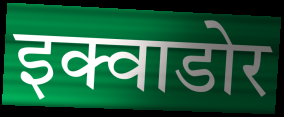
इक्‍वाडोर